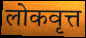
लोकवृत्त